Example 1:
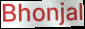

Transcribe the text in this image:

Bhonjal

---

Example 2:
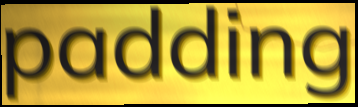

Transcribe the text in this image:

padding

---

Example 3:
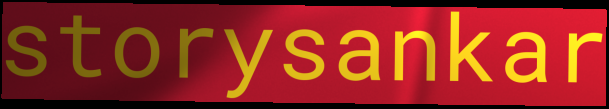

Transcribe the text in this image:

storysankar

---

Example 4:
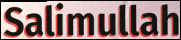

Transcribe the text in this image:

Salimullah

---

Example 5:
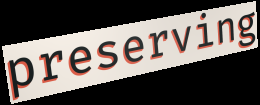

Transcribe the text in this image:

preserving